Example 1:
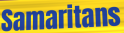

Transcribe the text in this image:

Samaritans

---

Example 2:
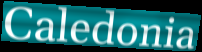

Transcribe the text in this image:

Caledonia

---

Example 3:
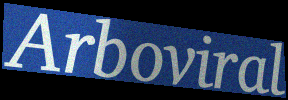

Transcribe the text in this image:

Arboviral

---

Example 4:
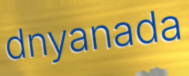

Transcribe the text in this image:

dnyanada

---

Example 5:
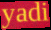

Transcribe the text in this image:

yadi